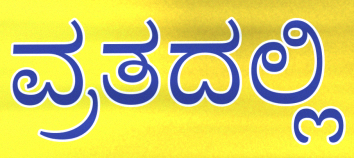
ವ್ರತದಲ್ಲಿ